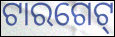
ଟାରଗେଟ୍